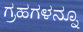
ಗ್ರಹಗಳನ್ನೂ